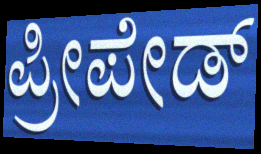
ಪ್ರೀಪೇಡ್